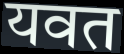
यवत